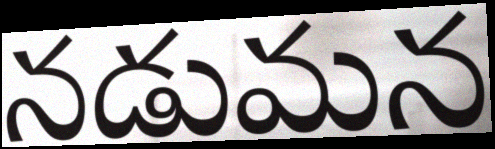
నడుమన